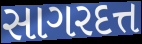
સાગરદત્ત